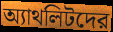
অ্যাথলিটদের